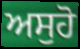
ਅਸੁਹੋ